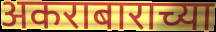
अकराबाराच्या